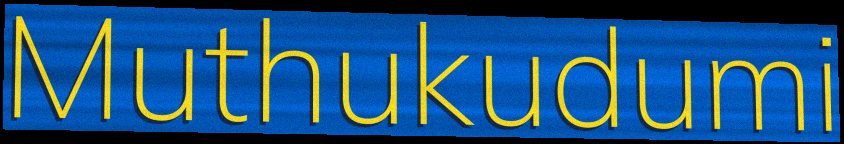
Muthukudumi